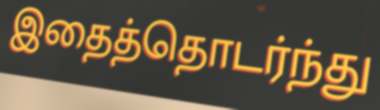
இதைத்தொடர்ந்து